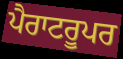
ਪੈਰਾਟਰੂਪਰ